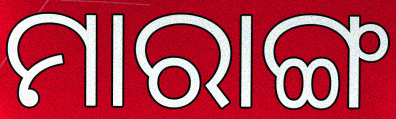
ମାରାଙ୍ଗ